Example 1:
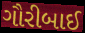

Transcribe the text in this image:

ગૌરીબાઈ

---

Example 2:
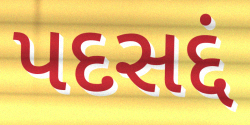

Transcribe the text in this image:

પદસદ્દં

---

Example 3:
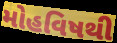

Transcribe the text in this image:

મોહવિષથી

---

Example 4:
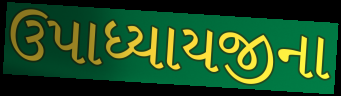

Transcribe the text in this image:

ઉપાધ્યાયજીના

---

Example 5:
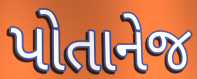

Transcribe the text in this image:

પોતાનેજ